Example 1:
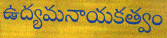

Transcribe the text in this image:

ఉద్యమనాయకత్వం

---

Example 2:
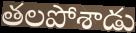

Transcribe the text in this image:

తలపోశాడు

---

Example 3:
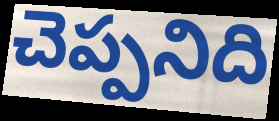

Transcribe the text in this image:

చెప్పనిది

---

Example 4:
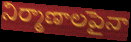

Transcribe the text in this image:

నిర్మాణాలపైనా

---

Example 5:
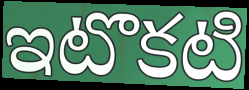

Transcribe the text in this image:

ఇటొకటి